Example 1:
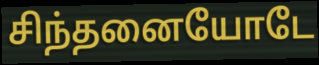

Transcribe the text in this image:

சிந்தனையோடே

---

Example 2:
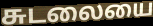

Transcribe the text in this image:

சுடலையை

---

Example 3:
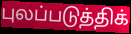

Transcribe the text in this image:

புலப்படுத்திக்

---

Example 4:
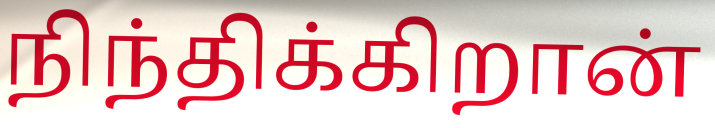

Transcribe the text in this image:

நிந்திக்கிறான்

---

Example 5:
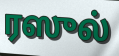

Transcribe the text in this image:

ரஸுல்